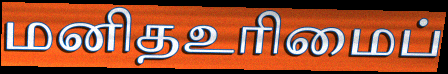
மனிதஉரிமைப்